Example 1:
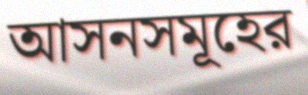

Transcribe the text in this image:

আসনসমূহের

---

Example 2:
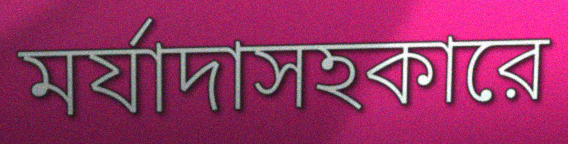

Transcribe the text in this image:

মর্যাদাসহকারে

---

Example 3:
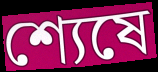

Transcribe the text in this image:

শ্যেষে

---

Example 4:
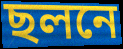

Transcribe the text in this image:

ছলনে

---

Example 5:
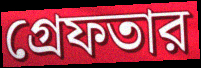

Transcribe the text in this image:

গ্রেফতার